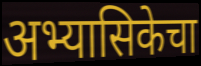
अभ्यासिकेचा